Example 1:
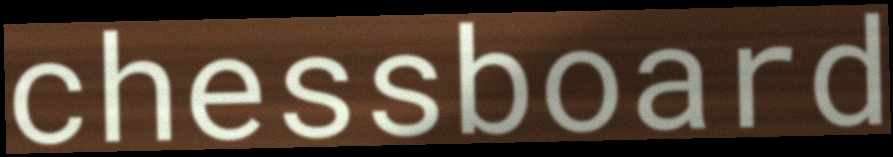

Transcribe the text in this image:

chessboard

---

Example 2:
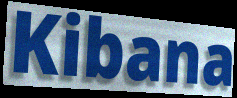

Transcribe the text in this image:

Kibana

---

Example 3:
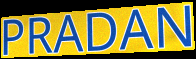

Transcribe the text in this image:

PRADAN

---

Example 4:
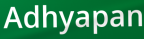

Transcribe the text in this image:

Adhyapan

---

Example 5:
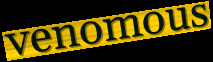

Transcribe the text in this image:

venomous